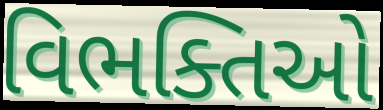
વિભક્તિઓ